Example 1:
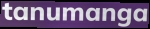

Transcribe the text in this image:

tanumanga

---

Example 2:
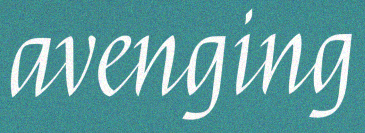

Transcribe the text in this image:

avenging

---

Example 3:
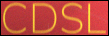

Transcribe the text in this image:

CDSL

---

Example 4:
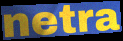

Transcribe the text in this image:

netra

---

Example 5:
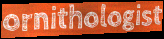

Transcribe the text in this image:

ornithologist